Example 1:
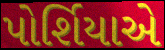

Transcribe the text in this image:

પોર્શિયાએ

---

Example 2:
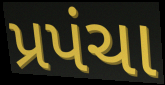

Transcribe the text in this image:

પ્રપંચા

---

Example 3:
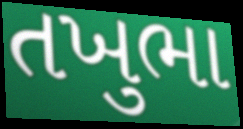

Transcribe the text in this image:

તખુભા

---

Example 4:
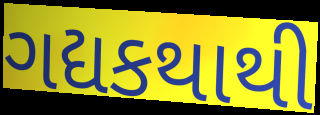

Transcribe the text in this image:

ગદ્યકથાથી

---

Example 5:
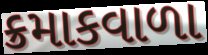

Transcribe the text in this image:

ક્રમાકવાળા